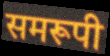
समरूपी